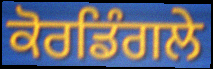
ਕੋਰਡਿੰਗਲੇ